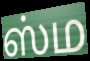
ஸ்ம